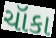
ચૉકા